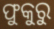
ଫୁକୁରୁ